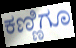
ಕಣ್ಣಿಗೂ